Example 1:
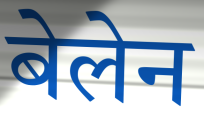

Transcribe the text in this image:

बेलेन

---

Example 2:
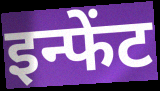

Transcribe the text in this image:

इन्फेंट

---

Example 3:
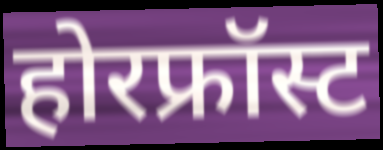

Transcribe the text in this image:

होरफ्रॉस्ट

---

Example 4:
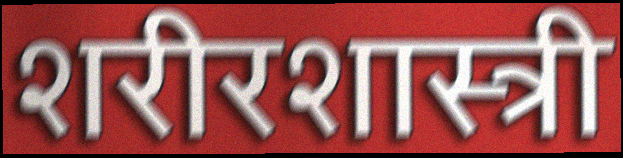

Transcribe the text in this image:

शरीरशास्त्री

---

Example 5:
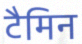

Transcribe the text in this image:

टैमिन